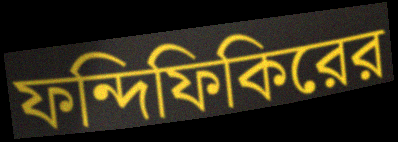
ফন্দিফিকিরের